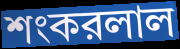
শংকরলাল